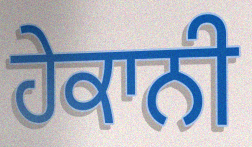
ਹੇਕਾਨੀ